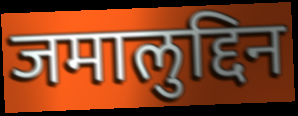
जमालुद्दिन